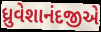
ધ્રુવેશાનંદજીએ